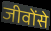
जीवोंसे